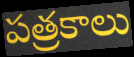
పత్రకాలు